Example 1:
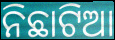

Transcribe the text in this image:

ନିଛାଟିଆ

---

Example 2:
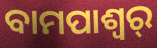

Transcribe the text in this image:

ବାମପାଶ୍ୱର୍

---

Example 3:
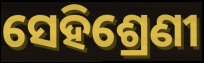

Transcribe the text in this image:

ସେହିଶ୍ରେଣୀ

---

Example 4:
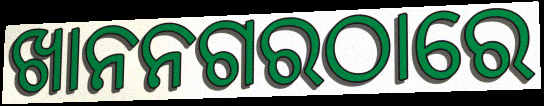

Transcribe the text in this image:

ଖାନନଗରଠାରେ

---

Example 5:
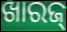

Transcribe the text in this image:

ଖାରଜ୍